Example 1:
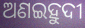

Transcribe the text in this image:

ଅଣଇହୁଦୀ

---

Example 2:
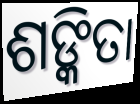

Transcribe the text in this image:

ଶଙ୍କିତା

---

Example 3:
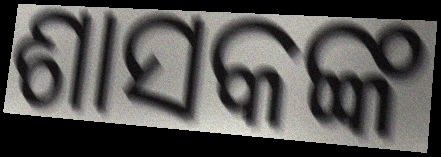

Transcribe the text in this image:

ଶାସକଙ୍କ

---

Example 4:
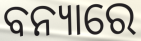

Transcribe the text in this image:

ବନ୍ୟାରେ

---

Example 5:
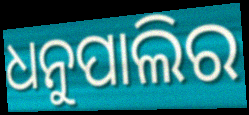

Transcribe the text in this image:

ଧନୁପାଲିର